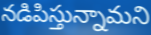
నడిపిస్తున్నామని